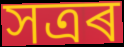
সত্ৰৰ